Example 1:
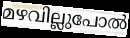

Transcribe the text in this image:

മഴവില്ലുപോൽ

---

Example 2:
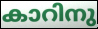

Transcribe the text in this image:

കാറിനു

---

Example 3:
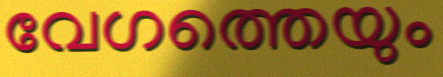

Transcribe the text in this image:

വേഗത്തെയും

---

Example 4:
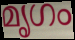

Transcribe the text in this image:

മൃഗം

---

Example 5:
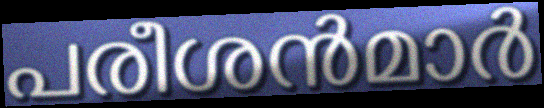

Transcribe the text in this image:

പരീശൻമാർ